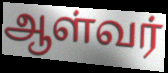
ஆள்வர்